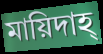
মায়িদাহ্